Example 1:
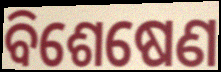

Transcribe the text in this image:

ବିଶେଷେଣ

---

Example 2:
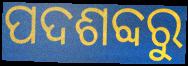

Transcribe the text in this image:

ପଦଶବ୍ଦରୁ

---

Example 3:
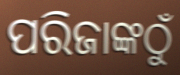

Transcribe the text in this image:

ପରିଜାଙ୍କଠୁଁ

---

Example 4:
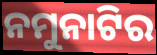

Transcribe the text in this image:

ନମୁନାଟିର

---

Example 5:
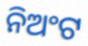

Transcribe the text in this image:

ନିଅଂଟ